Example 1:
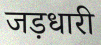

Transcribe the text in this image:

जड़धारी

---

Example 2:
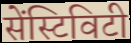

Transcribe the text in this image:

सेंस्टिविटी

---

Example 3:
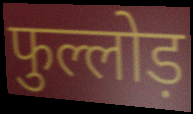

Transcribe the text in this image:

फुल्लोड़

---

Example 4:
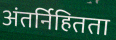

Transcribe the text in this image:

अंतर्निहितता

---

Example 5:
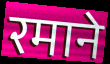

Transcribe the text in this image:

रमाने